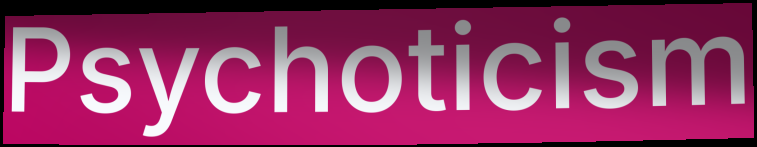
Psychoticism